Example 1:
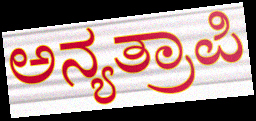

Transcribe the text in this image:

ಅನ್ಯತ್ರಾಪಿ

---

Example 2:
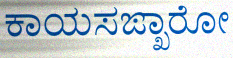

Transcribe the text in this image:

ಕಾಯಸಙ್ಖಾರೋ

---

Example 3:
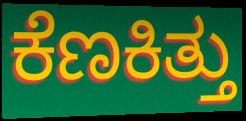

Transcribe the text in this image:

ಕೆಣಕಿತ್ತು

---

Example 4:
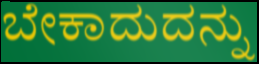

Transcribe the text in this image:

ಬೇಕಾದುದನ್ನು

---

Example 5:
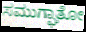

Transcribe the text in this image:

ಸಮುಗ್ಘಾತೋ